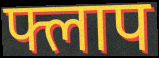
फ्लाप